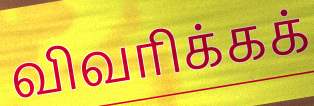
விவரிக்கக்